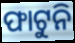
ଫାଟୁନି